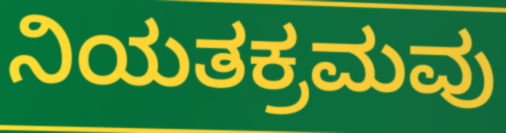
ನಿಯತಕ್ರಮವು